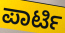
ಪಾರ್ಟಿ